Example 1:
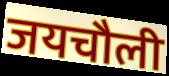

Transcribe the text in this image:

जयचौली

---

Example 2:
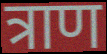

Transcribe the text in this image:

त्राण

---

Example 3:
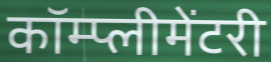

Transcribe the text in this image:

कॉम्प्लीमेंटरी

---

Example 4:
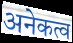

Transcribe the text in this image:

अनेकत्व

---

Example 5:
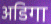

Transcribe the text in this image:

अडिगा